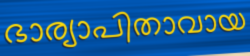
ഭാര്യാപിതാവായ